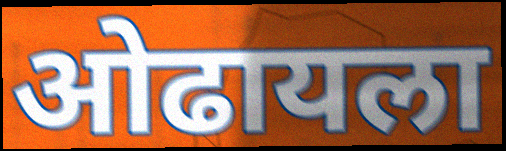
ओढायला